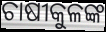
ଚାଷୀକୁଳଙ୍କ